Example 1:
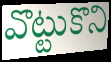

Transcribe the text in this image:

వొట్టుకొని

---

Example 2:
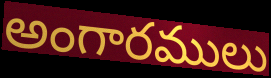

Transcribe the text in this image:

అంగారములు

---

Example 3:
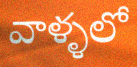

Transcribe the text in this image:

వాళ్ళలో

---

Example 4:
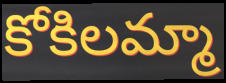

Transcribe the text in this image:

కోకిలమ్మా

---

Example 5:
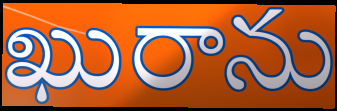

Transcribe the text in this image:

ఖురాను